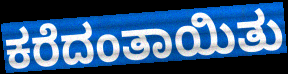
ಕರೆದಂತಾಯಿತು